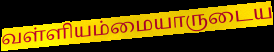
வள்ளியம்மையாருடைய